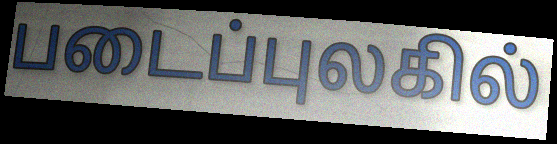
படைப்புலகில்